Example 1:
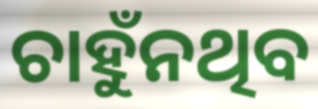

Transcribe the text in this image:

ଚାହୁଁନଥିବ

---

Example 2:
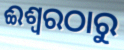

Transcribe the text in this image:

ଈଶ୍ୱରଠାରୁ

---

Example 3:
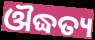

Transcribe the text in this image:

ଔଦ୍ଧତ୍ୟ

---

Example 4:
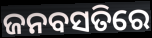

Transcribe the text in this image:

ଜନବସତିରେ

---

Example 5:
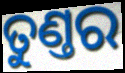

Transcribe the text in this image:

ତୁଣ୍ତର